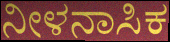
ನೀಳನಾಸಿಕ